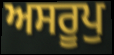
ਅਸਰੂਪੁ